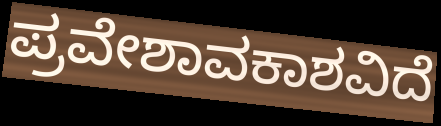
ಪ್ರವೇಶಾವಕಾಶವಿದೆ